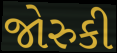
જોરુકી